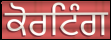
ਕੋਰਟਿੰਗ